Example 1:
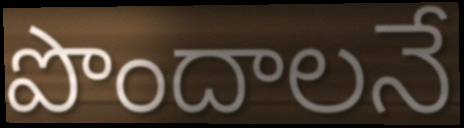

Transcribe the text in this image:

పొందాలనే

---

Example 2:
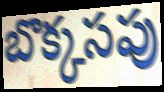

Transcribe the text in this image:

బొక్కసపు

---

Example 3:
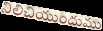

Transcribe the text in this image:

నిలిచియుందుము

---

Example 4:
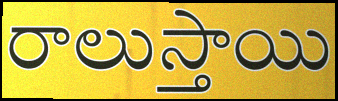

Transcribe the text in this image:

రాలుస్తాయి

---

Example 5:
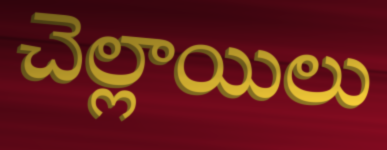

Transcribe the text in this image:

చెల్లాయిలు